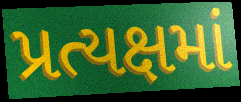
પ્રત્‍યક્ષમાં